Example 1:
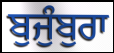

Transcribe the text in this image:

ਬੁਜੁੰਬੁਰਾ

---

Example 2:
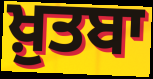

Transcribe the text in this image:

ਖ਼ੁਤਬਾ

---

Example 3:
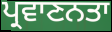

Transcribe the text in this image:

ਪ੍ਰਵਾਣਨਤਾ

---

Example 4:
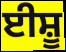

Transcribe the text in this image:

ਈਸ਼ੂ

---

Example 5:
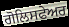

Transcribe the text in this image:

ਗੋਲਿਸਫੇਅਰ